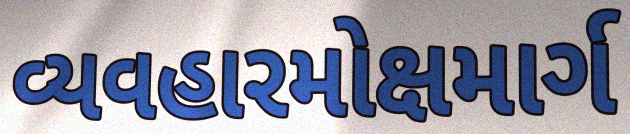
વ્યવહારમોક્ષમાર્ગ